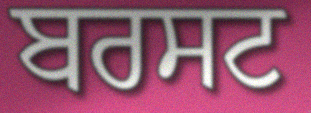
ਬਰਸਟ